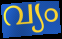
വ്യം